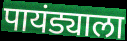
पायंड्याला